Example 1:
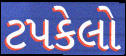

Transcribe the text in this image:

ટપકેલો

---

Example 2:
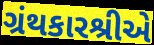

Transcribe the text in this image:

ગ્રંથકારશ્રીએ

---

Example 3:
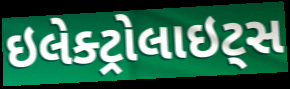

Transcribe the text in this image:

ઇલેક્ટ્રોલાઇટ્સ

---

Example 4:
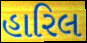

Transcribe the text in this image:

હારિલ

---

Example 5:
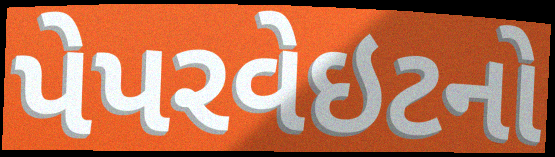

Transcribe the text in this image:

પેપરવેઇટનો